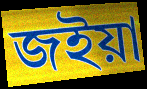
জইয়া